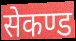
सेकण्ड